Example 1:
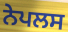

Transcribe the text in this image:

ਨੇਪਲਸ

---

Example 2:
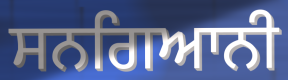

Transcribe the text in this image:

ਸਨਗਿਆਨੀ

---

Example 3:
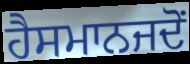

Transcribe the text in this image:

ਹੈਸਮਾਨਜਦੋਂ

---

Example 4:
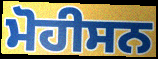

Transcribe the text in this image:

ਮੋਹੀਸਨ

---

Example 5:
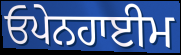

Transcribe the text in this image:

ਓਪੇਨਹਾਈਮ